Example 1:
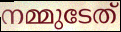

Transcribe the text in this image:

നമ്മുടേത്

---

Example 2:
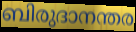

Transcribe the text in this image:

ബിരുദാനന്തര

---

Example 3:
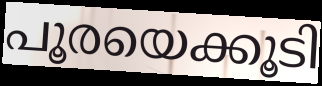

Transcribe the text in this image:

പൂരയെക്കൂടി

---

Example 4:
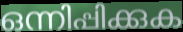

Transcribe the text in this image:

ഒന്നിപ്പിക്കുക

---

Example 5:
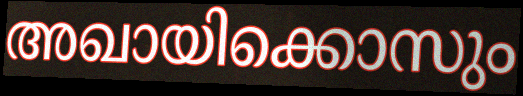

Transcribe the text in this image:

അഖായിക്കൊസും